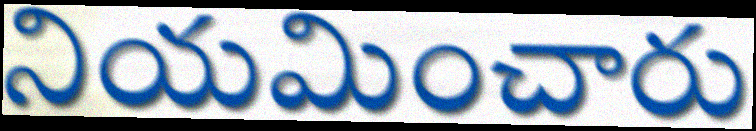
నియమించారు